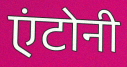
एंटोनी